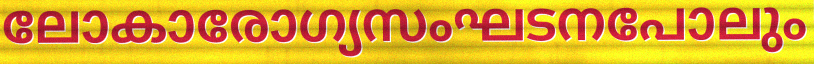
ലോകാരോഗ്യസംഘടനപോലും